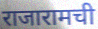
राजारामची